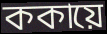
ককায়ে